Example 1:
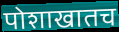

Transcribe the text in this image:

पोशाखातच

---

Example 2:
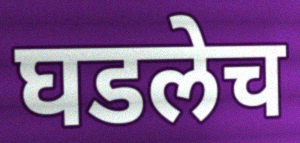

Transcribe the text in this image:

घडलेच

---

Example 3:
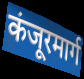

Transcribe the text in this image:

कंजूरमार्ग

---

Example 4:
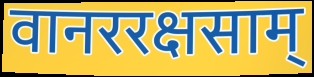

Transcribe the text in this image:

वानररक्षसाम्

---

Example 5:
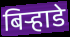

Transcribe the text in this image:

बिऱ्हाडे